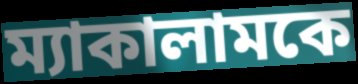
ম্যাকালামকে